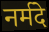
नर्मदे